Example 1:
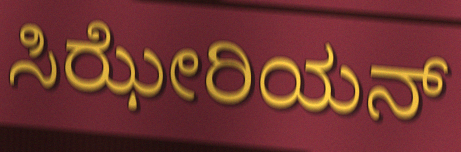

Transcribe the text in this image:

ಸಿಝೇರಿಯನ್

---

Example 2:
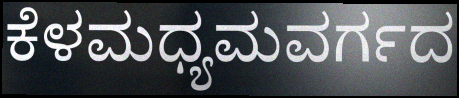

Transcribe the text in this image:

ಕೆಳಮಧ್ಯಮವರ್ಗದ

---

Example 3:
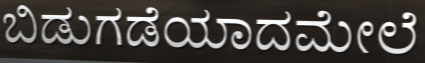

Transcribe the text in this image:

ಬಿಡುಗಡೆಯಾದಮೇಲೆ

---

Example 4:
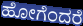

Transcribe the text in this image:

ಹೋಗೆಂದರೆ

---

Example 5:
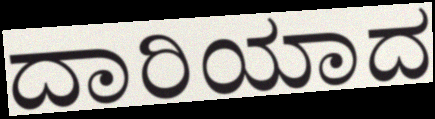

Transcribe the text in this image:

ದಾರಿಯಾದ